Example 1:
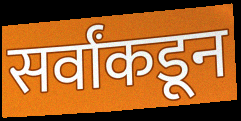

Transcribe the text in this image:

सर्वांकडून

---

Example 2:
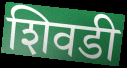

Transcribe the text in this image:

शिवडी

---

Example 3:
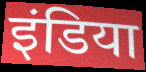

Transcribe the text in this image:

इंडिया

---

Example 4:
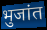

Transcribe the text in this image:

भुजांत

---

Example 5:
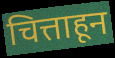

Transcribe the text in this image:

चित्ताहून